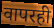
वापरही